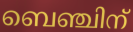
ബെഞ്ചിന്